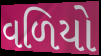
વળિયો